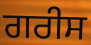
ਗਰੀਸ